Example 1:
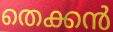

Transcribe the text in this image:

തെക്കൻ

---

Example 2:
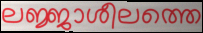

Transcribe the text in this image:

ലജ്ജാശീലത്തെ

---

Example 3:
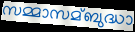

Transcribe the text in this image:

സമ്മാസമ്ബുദ്ധാ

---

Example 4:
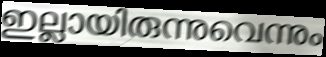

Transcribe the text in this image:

ഇല്ലായിരുന്നുവെന്നും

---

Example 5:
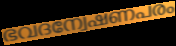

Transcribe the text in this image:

ഭവദന്വേഷണപരം